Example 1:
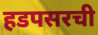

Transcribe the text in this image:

हडपसरची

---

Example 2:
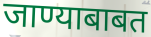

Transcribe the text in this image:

जाण्याबाबत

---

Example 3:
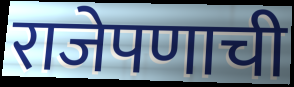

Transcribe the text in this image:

राजेपणाची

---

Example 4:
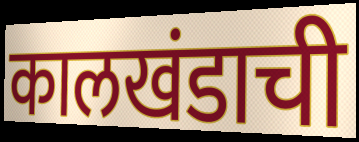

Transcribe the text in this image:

कालखंडाची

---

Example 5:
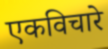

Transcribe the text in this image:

एकविचारे